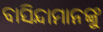
ବାସିନ୍ଦାମାନଙ୍କୁ